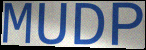
MUDP